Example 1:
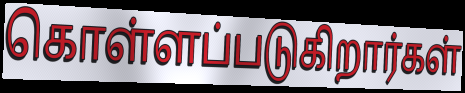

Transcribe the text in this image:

கொள்ளப்படுகிறார்கள்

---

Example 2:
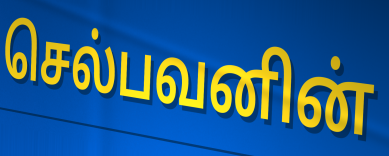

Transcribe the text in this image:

செல்பவனின்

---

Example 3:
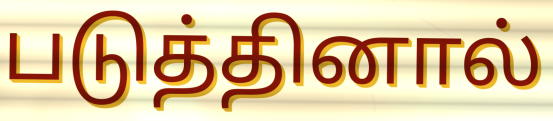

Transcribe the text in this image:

படுத்தினால்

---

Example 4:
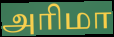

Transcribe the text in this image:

அரிமா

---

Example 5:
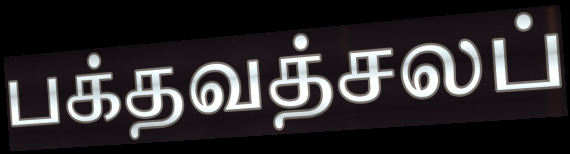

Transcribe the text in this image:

பக்தவத்சலப்